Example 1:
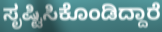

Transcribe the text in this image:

ಸೃಷ್ಟಿಸಿಕೊಂಡಿದ್ದಾರೆ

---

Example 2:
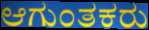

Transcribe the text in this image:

ಆಗುಂತಕರು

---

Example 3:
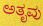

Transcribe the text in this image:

ಅತೃವು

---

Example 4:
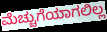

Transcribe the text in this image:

ಮೆಚ್ಚುಗೆಯಾಗಲಿಲ್ಲ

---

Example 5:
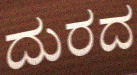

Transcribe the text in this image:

ದುರದ